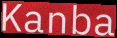
Kanba